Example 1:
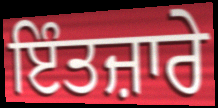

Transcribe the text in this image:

ਇੰਤਜ਼ਾਰੇ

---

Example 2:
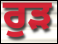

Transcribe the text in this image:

ਰੁੜ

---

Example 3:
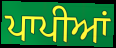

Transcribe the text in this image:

ਪਾਪੀਆਂ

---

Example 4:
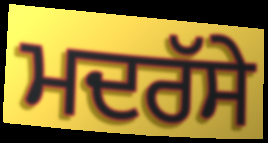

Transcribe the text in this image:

ਮਦਰੱਸੇ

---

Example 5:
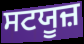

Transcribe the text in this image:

ਸਟਯੂਜ਼